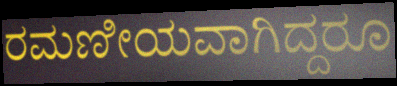
ರಮಣೀಯವಾಗಿದ್ದರೂ